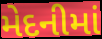
મેદનીમાં